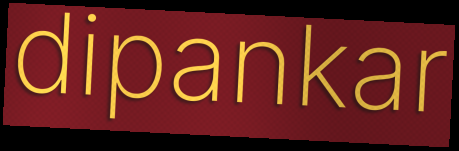
dipankar